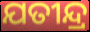
ଯତୀନ୍ଦ୍ର